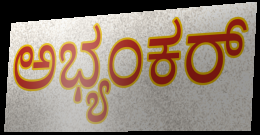
ಅಭ್ಯಂಕರ್